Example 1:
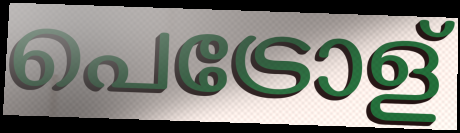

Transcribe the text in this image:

പെട്രോള്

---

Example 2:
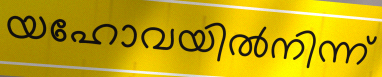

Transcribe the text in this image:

യഹോവയിൽനിന്ന്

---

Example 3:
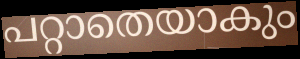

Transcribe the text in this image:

പറ്റാതെയാകും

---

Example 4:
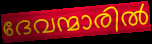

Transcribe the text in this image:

ദേവന്മാരിൽ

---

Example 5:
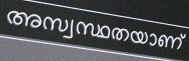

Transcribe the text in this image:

അസ്വസ്ഥതയാണ്